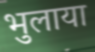
भुलाया